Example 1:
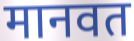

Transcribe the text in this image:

मानवत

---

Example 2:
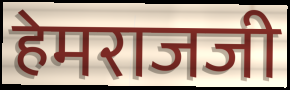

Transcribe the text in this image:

हेमराजजी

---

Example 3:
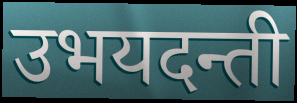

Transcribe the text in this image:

उभयदन्ती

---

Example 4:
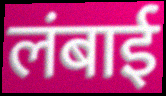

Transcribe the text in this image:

लंबाई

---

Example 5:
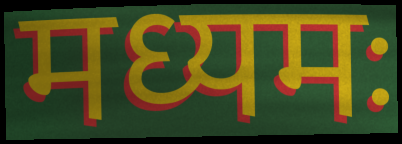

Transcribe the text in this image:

मध्यमः